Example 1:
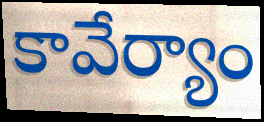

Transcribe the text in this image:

కావేర్యాం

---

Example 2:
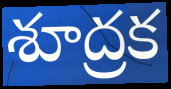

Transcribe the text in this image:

శూద్రక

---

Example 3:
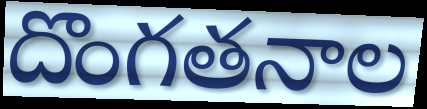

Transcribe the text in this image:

దొంగతనాల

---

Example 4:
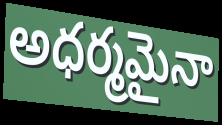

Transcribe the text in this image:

అధర్మమైనా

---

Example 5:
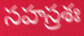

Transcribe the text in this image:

సహస్రశః